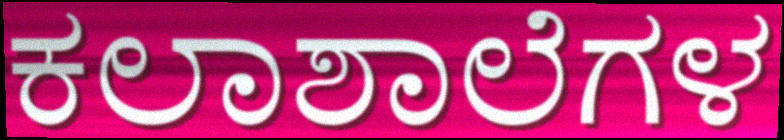
ಕಲಾಶಾಲೆಗಳ